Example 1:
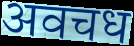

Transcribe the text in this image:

अवचध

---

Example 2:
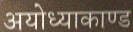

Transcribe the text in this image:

अयोध्याकाण्ड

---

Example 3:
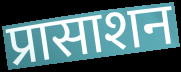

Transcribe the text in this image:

प्रासाशन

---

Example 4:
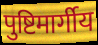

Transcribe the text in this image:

पुष्टिमार्गीय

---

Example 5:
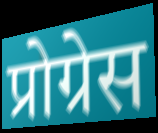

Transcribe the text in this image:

प्रोग्रेस